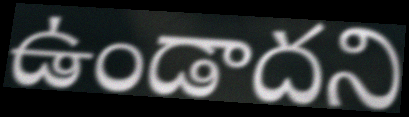
ఉండాదని